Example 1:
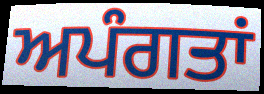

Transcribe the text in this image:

ਅਪੰਗਤਾਂ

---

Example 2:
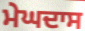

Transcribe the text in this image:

ਮੇਘਦਾਸ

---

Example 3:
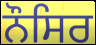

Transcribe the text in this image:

ਨੌਸਿਰ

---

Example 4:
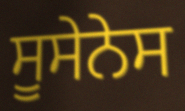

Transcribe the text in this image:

ਸੂਸੇਨੇਸ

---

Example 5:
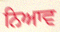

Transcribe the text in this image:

ਨਿਆਵ